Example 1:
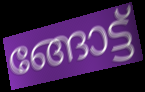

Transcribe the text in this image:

ങ്ങോട്ട്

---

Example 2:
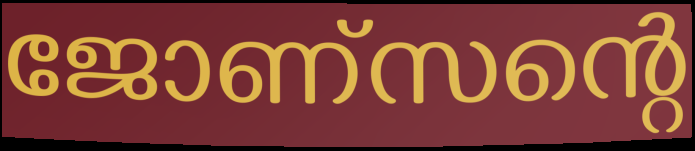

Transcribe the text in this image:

ജോണ്സന്റെ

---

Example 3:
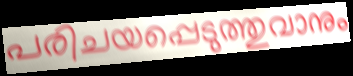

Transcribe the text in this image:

പരിചയപ്പെടുത്തുവാനും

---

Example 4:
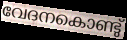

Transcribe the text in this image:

വേദനകൊണ്ടു്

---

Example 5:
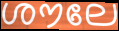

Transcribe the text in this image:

ശൗലേ